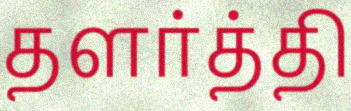
தளர்த்தி